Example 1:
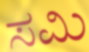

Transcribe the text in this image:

ಸಮಿ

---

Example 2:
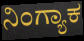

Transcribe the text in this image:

ನಿಂಗ್ಯಾಕ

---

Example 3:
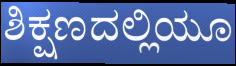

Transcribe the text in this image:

ಶಿಕ್ಷಣದಲ್ಲಿಯೂ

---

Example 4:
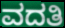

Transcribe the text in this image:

ವದತಿ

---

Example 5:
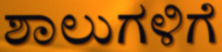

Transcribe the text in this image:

ಶಾಲುಗಳಿಗೆ